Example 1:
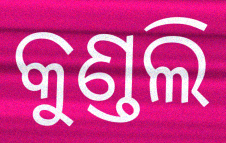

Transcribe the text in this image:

କୁଣ୍ଡଲି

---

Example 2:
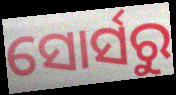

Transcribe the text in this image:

ସୋର୍ସରୁ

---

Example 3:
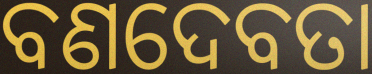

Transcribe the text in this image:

ବଣଦେବତା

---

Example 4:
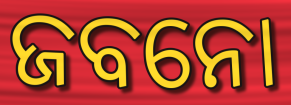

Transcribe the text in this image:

ଜବନୋ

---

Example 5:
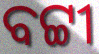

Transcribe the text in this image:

ବଟ୍ଟୀ